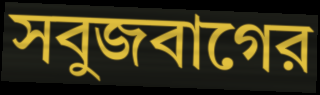
সবুজবাগের